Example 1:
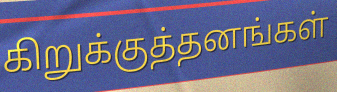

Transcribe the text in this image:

கிறுக்குத்தனங்கள்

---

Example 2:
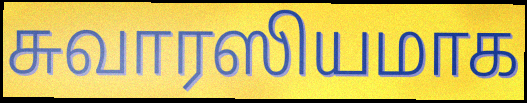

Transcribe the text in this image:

சுவாரஸியமாக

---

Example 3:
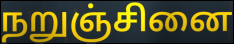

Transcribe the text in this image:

நறுஞ்சினை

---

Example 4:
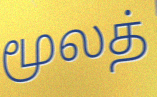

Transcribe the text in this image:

மூலத்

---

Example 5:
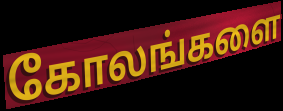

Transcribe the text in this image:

கோலங்களை